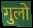
गुलो